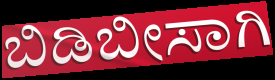
ಬಿಡಿಬೀಸಾಗಿ